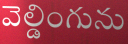
వెల్డింగును